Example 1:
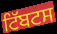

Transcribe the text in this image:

ਟਿੱਬਟਸ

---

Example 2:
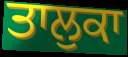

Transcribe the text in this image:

ਤਾਲੁਕਾ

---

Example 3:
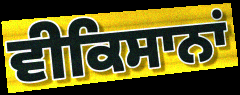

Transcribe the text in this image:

ਵੀਕਿਸਾਨਾਂ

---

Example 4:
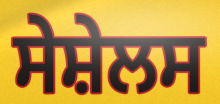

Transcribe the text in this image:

ਸੇਸ਼ੇਲਸ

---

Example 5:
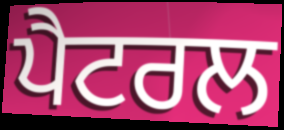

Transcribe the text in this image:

ਪੈਟਰਲ